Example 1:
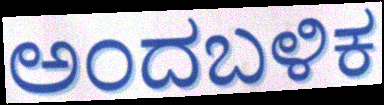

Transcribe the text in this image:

ಅಂದಬಳಿಕ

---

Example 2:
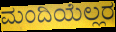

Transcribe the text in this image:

ಮಂದಿಯೆಲ್ಲರ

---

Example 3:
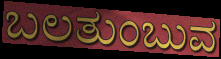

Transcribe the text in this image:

ಬಲತುಂಬುವ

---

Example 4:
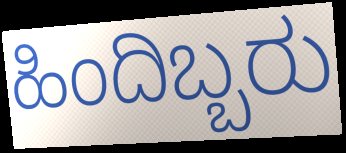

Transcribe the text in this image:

ಹಿಂದಿಬ್ಬರು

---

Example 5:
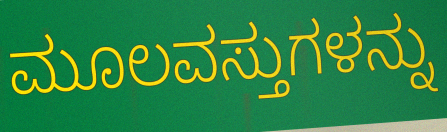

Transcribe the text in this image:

ಮೂಲವಸ್ತುಗಳನ್ನು